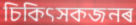
চিকিৎসকজনৰ